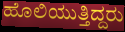
ಹೊಲಿಯುತ್ತಿದ್ದರು